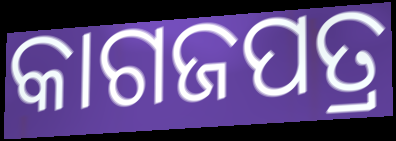
କାଗଜପତ୍ର